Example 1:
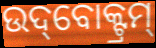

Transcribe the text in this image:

ଉଦ୍‌ବୋକ୍ଟ୍ରମ୍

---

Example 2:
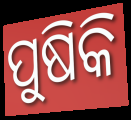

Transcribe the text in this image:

ପୁଷିକି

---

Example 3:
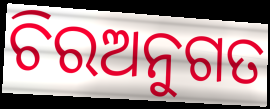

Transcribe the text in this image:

ଚିରଅନୁଗତ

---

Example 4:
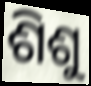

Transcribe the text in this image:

ଶିଶୁ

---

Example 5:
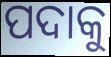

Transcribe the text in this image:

ପଦାକୁ